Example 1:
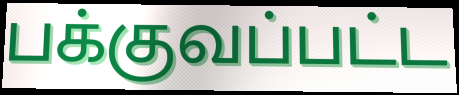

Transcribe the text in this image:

பக்குவப்பட்ட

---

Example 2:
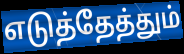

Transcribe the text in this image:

எடுத்தேத்தும்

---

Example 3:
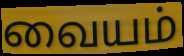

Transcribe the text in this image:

வையம்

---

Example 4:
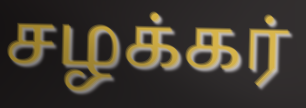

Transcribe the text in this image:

சழக்கர்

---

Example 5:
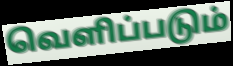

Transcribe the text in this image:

வெளிப்படும்